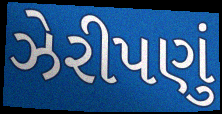
ઝેરીપણું